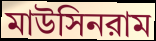
মাউসিনরাম